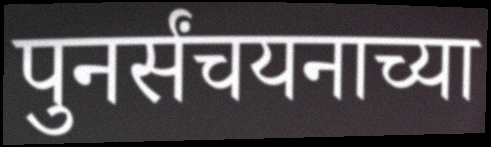
पुनर्संचयनाच्या